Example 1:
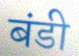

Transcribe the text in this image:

बंडी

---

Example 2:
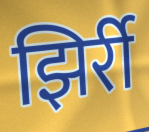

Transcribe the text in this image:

झिर्री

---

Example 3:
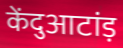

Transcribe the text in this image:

केंदुआटांड़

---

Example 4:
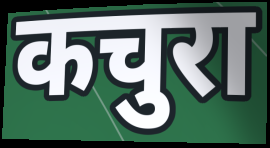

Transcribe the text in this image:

कचुरा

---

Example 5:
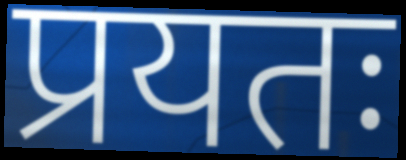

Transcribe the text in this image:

प्रयतः